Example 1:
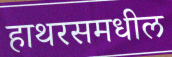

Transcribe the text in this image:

हाथरसमधील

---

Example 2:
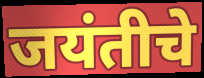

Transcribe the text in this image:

जयंतीचे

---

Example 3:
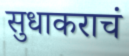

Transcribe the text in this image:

सुधाकराचं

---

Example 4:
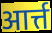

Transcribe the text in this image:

आर्त्त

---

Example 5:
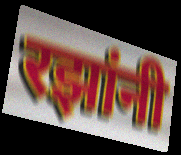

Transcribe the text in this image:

रझांनी